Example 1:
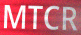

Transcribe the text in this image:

MTCR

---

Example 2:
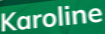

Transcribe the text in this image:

Karoline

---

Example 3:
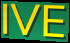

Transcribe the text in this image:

IVE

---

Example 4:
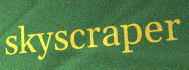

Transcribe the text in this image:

skyscraper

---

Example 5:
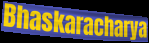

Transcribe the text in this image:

Bhaskaracharya